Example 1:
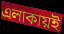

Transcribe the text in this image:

এলাকায়ই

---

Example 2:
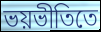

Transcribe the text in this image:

ভয়ভীতিতে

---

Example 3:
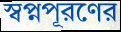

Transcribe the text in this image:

স্বপ্নপূরণের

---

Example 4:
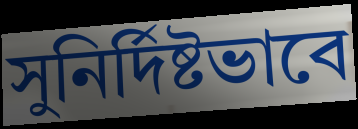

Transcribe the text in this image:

সুনির্দিষ্টভাবে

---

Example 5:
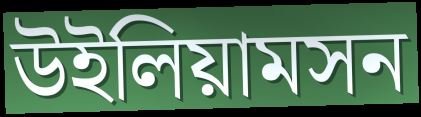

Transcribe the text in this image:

উইলিয়ামসন